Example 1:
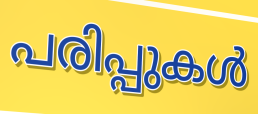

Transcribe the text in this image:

പരിപ്പുകൾ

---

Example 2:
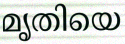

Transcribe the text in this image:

മൃതിയെ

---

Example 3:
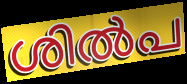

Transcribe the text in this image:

ശിൽപ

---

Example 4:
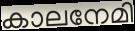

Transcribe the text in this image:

കാലനേമി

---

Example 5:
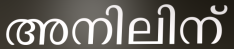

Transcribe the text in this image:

അനിലിന്